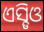
ଏସ୍ଡିଓ